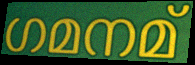
ഗമനമ്